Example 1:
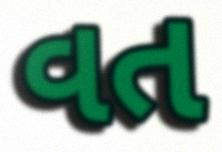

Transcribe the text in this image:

વત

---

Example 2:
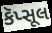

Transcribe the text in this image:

કૅપ્સૂલ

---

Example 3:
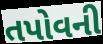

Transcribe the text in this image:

તપોવની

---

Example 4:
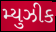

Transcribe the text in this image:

મ્યુઝીક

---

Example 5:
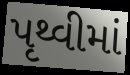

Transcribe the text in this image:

પૃથ્વીમાં